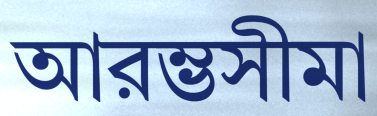
আরম্ভসীমা